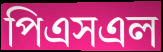
পিএসএল